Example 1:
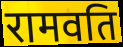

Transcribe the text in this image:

रामवति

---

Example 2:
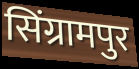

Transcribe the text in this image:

सिंग्रामपुर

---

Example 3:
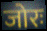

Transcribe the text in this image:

जोरः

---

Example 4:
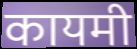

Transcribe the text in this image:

कायमी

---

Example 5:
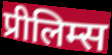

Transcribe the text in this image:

प्रीलिम्स